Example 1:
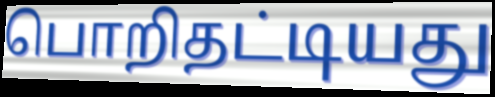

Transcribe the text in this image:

பொறிதட்டியது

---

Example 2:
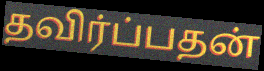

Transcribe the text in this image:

தவிர்ப்பதன்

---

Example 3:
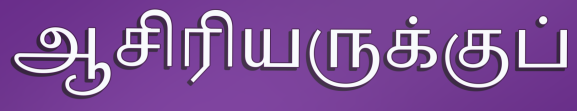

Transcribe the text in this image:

ஆசிரியருக்குப்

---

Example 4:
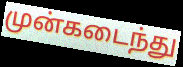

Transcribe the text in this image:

முன்கடைந்து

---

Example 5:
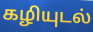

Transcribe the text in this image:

கழியுடல்